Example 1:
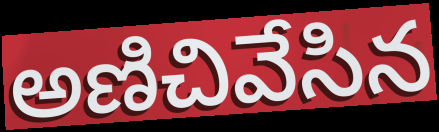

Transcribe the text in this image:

అణిచివేసిన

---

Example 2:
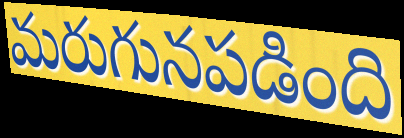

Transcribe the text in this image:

మరుగునపడింది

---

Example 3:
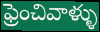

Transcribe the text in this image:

ఫ్రెంచివాళ్ళు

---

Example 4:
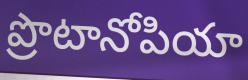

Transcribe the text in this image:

ప్రొటానోపియా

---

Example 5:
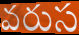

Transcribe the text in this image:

వరుస